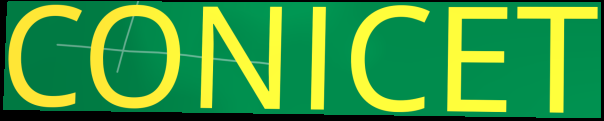
CONICET